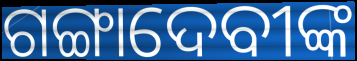
ଗଙ୍ଗାଦେବୀଙ୍କ